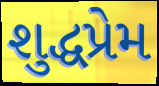
શુદ્ધપ્રેમ